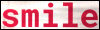
smile